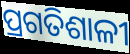
ପ୍ରଗତିଶାଳୀ